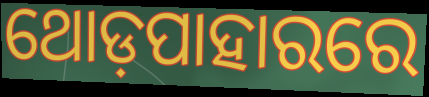
ଥୋଡ଼ପାହାରରେ